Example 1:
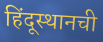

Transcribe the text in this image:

हिंदूस्थानची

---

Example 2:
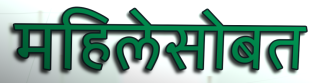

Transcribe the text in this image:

महिलेसोबत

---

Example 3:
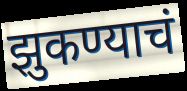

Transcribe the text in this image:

झुकण्याचं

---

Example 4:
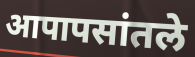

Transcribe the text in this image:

आपापसांतले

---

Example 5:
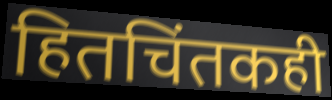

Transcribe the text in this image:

हितचिंतकही